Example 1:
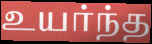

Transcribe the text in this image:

உயர்ந்த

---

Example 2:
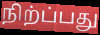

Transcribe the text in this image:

நிற்ப்பது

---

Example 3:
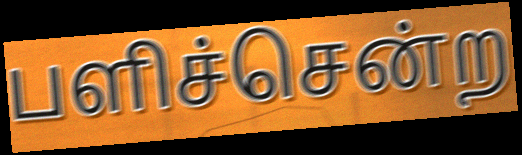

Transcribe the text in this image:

பளிச்சென்ற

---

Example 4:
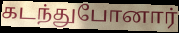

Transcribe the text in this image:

கடந்துபோனார்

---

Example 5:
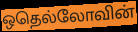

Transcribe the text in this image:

ஒதெல்லோவின்